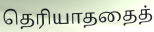
தெரியாததைத்